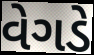
વેગડે